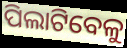
ପିଲାଟିବେଳୁ